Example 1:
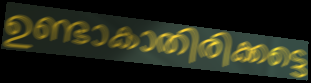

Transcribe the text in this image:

ഉണ്ടാകാതിരിക്കട്ടെ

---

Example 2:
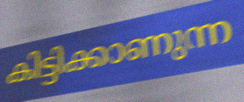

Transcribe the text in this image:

കിട്ടിക്കാണുന്ന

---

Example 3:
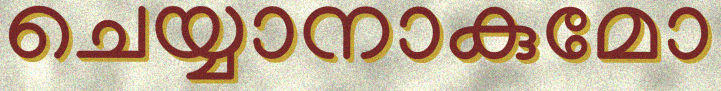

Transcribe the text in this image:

ചെയ്യാനാകുമോ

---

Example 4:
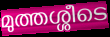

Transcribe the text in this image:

മുത്തശ്ശീടെ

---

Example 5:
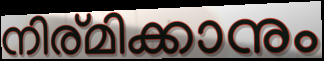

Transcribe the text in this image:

നിര്മിക്കാനും